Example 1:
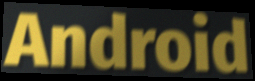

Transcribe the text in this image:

Android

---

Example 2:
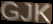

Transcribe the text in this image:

GJK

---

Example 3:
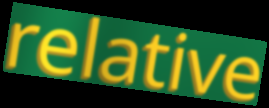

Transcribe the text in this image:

relative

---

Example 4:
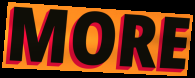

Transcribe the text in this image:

MORE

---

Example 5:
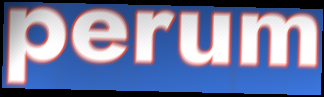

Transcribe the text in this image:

perum